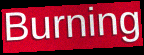
Burning